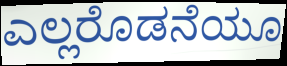
ಎಲ್ಲರೊಡನೆಯೂ